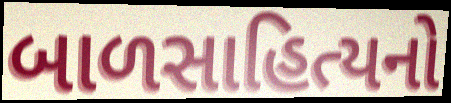
બાળસાહિત્યનો